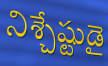
నిశ్చేష్టుడై